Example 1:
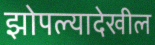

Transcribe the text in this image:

झोपल्यादेखील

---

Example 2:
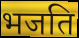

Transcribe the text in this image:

भजति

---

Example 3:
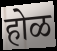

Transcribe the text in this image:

होळ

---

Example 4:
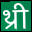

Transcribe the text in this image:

थ्री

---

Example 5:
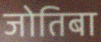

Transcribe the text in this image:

जोतिबा